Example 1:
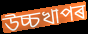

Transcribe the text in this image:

উচ্চখাপৰ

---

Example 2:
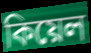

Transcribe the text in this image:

কিয়েল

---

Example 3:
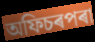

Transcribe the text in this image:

অফিচৰপৰা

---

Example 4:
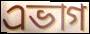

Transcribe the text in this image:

এভাগ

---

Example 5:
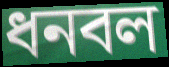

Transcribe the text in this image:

ধনবল